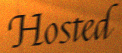
Hosted